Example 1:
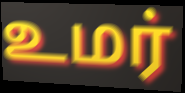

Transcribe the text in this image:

உமர்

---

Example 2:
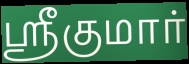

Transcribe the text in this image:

ஸ்ரீகுமார்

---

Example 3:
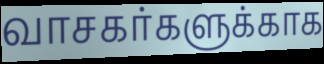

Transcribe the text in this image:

வாசகர்களுக்காக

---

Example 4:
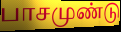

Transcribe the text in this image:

பாசமுண்டு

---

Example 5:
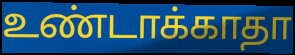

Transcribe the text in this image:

உண்டாக்காதா